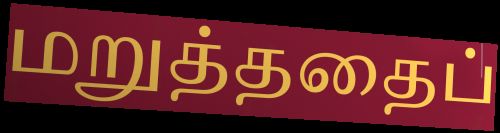
மறுத்ததைப்